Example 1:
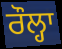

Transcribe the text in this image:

ਰੌਲ੍ਹਾ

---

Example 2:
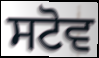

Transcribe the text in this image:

ਸਟੋਵ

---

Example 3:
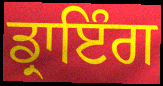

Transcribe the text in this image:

ਡ੍ਰਾਇੰਗ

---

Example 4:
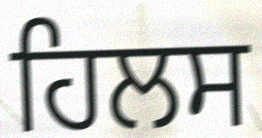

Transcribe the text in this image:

ਹਿਲਸ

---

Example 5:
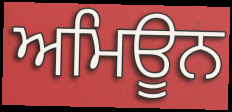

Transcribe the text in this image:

ਅਮਿਊਨ